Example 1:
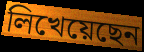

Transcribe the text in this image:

লিখেয়েছেন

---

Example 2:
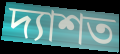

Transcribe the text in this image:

দ্যাশত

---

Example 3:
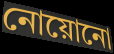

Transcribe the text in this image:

নোয়োনো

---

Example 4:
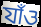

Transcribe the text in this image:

যাঁও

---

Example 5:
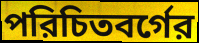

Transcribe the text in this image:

পরিচিতবর্গের